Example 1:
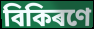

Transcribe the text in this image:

বিকিৰণে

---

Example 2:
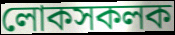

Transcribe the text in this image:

লোকসকলক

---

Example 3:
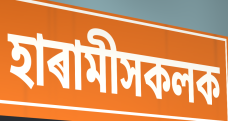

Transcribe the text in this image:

হাৰামীসকলক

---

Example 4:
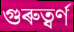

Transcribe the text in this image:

গুৰুত্ৱৰ্ণ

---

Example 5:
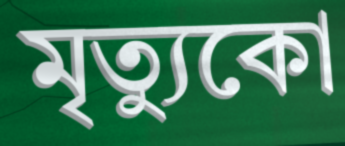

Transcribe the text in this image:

মৃত্যুকো